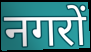
नगरों